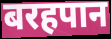
बरहपान